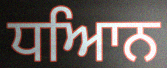
ਧਆਿਨ